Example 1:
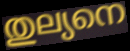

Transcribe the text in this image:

തുല്യനെ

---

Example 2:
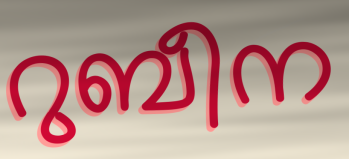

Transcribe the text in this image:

റുബീന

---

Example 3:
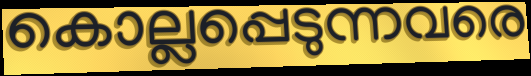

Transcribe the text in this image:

കൊല്ലപ്പെടുന്നവരെ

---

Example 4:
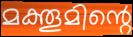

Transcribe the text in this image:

മക്തൂമിന്റെ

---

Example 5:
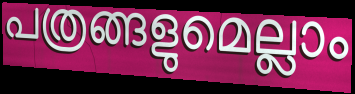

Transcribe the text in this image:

പത്രങ്ങളുമെല്ലാം